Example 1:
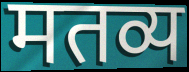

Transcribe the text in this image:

मतव्य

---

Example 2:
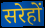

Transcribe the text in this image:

सरेहों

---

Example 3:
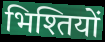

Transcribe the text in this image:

भिश्तियों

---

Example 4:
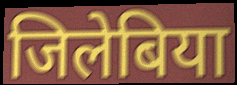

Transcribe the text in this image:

जिलेबिया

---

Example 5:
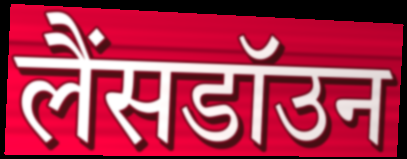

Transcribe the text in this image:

लैंसडॉउन